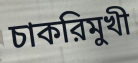
চাকরিমুখী